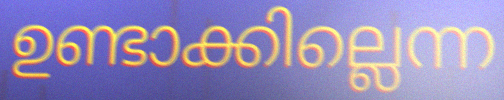
ഉണ്ടാക്കില്ലെന്ന